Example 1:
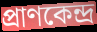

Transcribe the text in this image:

প্রাণকেন্দ্র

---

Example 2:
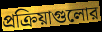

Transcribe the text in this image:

প্রক্রিয়াগুলোর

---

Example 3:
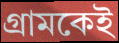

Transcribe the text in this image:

গ্রামকেই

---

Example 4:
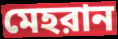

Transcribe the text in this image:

মেহরান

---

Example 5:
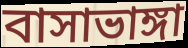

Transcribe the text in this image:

বাসাভাঙ্গা